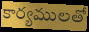
కార్యములతో